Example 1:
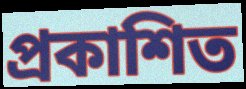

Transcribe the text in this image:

প্ৰকাশিত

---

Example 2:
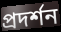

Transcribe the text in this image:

প্ৰদৰ্শন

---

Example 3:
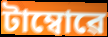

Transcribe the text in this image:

টাম্বোৱে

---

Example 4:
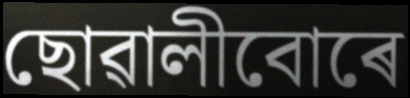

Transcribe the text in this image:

ছোৱালীবোৰে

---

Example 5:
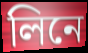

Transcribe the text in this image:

লিনে